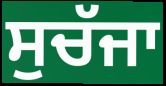
ਸੁਚੱਜਾ